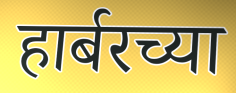
हार्बरच्या